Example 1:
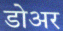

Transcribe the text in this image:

डोअर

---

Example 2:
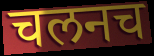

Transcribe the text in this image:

चलनच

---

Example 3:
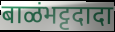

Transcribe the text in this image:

बाळंभट्टदादा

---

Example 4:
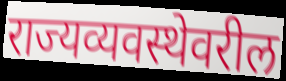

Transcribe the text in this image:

राज्यव्यवस्थेवरील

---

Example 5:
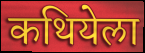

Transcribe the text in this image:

कथियेला